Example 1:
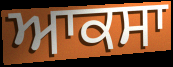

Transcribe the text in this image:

ਆਕਸਾ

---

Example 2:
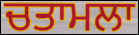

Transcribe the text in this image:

ਚਤਾਮਲਾ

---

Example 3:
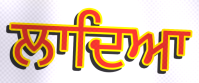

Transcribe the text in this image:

ਲਾਦਿਆ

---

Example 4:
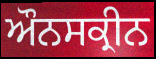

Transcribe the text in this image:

ਔਨਸਕ੍ਰੀਨ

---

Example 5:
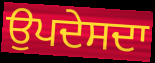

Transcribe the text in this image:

ਉਪਦੇਸਦਾ